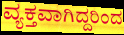
ವ್ಯಕ್ತವಾಗಿದ್ದರಿಂದ